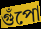
গুঁপো